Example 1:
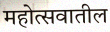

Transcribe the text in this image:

महोत्सवातील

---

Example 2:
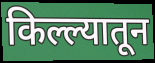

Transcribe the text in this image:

किल्ल्यातून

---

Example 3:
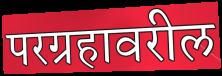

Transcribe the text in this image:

परग्रहावरील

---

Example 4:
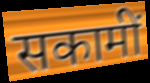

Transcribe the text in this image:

सकामीं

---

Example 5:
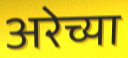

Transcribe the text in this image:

अरेच्या